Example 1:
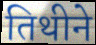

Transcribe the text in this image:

तिथीने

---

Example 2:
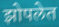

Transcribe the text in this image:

झोपलेत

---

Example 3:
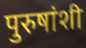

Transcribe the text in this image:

पुरुषांशी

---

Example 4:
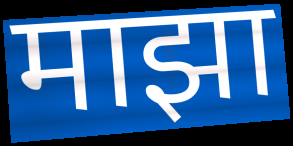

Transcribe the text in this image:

माझा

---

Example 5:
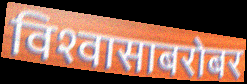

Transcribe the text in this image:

विश्वासाबरोबर